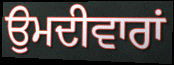
ਉਮਦੀਵਾਰਾਂ